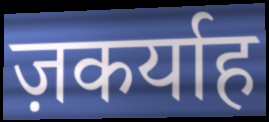
ज़कर्याह